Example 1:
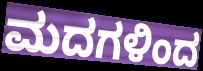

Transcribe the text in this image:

ಮದಗಳಿಂದ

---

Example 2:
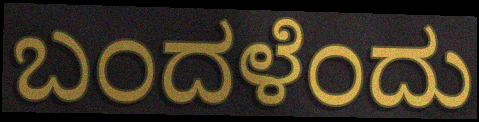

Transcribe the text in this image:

ಬಂದಳೆಂದು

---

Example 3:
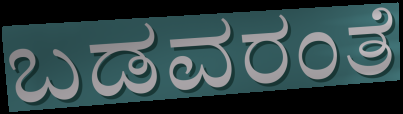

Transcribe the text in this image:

ಬಡವರಂತೆ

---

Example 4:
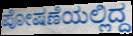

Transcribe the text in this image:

ಪೋಷಣೆಯಲ್ಲಿದ್ದ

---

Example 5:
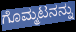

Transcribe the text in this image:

ಗೊಮ್ಮಟನನ್ನು